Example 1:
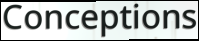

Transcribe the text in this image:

Conceptions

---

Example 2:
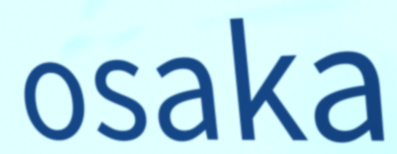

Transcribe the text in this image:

osaka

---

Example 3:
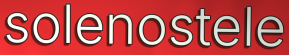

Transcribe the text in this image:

solenostele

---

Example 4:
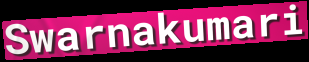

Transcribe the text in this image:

Swarnakumari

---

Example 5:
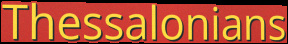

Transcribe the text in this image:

Thessalonians